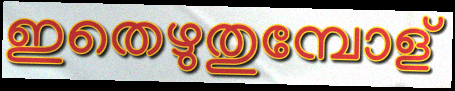
ഇതെഴുതുമ്പോള്